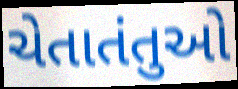
ચેતાતંતુઓ